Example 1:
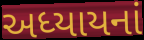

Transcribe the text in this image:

અધ્યાયનાં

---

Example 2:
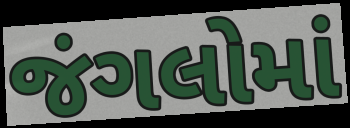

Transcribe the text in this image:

જંગલોમાં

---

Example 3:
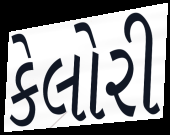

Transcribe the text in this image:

કેલોરી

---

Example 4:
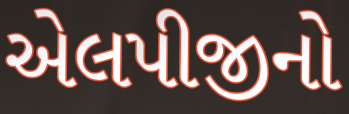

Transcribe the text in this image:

એલપીજીનો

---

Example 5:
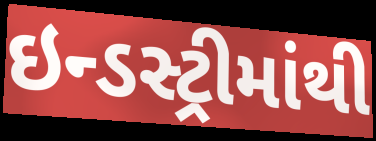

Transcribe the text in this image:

ઇન્ડસ્ટ્રીમાંથી